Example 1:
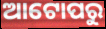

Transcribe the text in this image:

ଆଟୋପରୁ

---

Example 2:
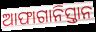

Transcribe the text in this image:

ଆଫାଗାନିସ୍ତାନ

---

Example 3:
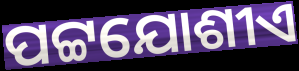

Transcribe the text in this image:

ପଟ୍ଟଯୋଶୀଏ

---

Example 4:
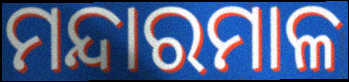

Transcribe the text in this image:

ମନ୍ଦାରମାଳ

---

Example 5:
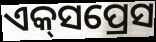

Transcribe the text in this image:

ଏକ୍‍ସପ୍ରେସ